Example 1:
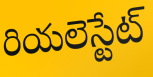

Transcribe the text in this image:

రియలెస్టేట్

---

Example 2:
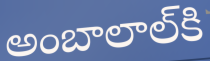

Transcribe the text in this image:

అంబాలాల్‌కి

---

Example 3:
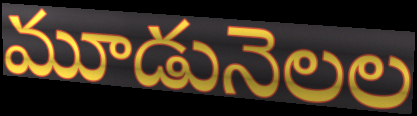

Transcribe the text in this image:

మూడునెలల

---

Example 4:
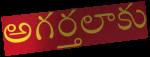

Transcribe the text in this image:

అగర్తలాకు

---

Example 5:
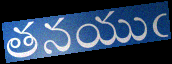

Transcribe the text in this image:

తనయుఁ